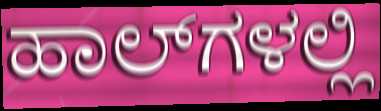
ಹಾಲ್‌ಗಳಲ್ಲಿ